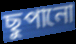
ছুপানো